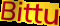
Bittu